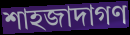
শাহজাদাগণ